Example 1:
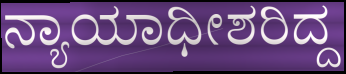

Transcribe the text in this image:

ನ್ಯಾಯಾಧೀಶರಿದ್ದ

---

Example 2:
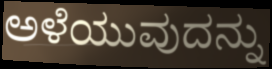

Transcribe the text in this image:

ಅಳೆಯುವುದನ್ನು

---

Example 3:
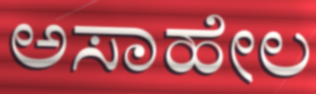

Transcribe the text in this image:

ಅಸಾಹೇಲ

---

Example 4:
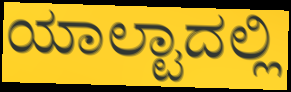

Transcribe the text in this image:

ಯಾಲ್ಟಾದಲ್ಲಿ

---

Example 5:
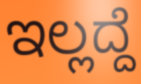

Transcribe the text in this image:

ಇಲ್ಲದ್ದೆ